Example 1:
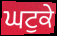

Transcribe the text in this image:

ਘਟੁਕੇ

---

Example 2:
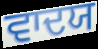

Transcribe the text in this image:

ਵਾਦਯ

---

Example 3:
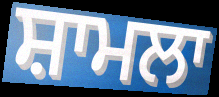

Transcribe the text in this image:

ਸ਼ਾਮਲਾ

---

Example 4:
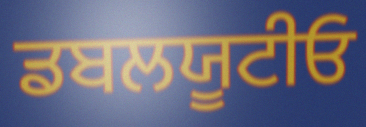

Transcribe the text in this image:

ਡਬਲਯੂਟੀਓ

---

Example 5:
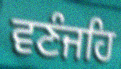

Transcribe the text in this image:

ਵਣੰਜਹਿ